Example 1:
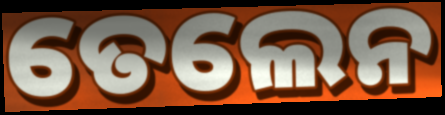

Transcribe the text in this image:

ତେଲେନ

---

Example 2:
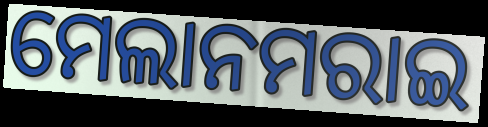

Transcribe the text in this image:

ମେଲାନମରାଇ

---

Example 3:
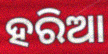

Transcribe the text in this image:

ହରିଆ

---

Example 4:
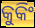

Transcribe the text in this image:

କୁକିଂ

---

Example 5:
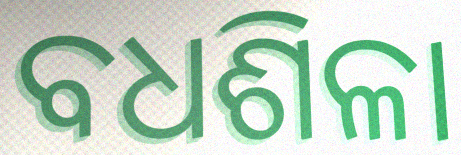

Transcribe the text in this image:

ବଧଶିଳା